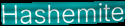
Hashemite